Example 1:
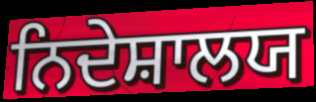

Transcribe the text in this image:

ਨਿਦੇਸ਼ਾਲਯ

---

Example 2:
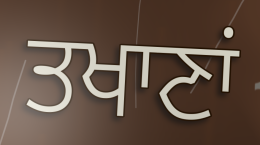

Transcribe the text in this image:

ਤਖਾਣਾਂ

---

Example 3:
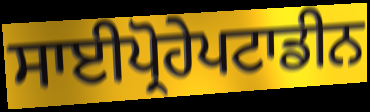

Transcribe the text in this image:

ਸਾਈਪ੍ਰੋਹੇਪਟਾਡੀਨ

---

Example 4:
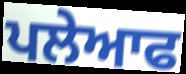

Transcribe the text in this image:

ਪਲੇਆਫ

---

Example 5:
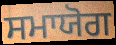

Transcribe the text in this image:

ਸਮਾਯੋਗ